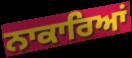
ਨਾਕਾਰਿਆਂ